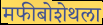
मफीबोशेथला